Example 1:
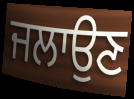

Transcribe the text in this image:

ਜਲਾਉਣ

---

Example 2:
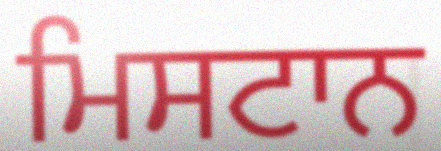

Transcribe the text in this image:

ਮਿਸਟਾਨ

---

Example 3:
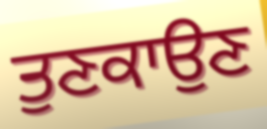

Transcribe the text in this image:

ਤੁਣਕਾਉਣ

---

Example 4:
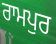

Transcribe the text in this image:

ਰਾਮਪੁਰ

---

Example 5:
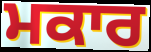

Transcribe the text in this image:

ਮਕਾਰ